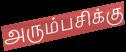
அரும்பசிக்கு